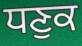
ਧਣੁਕ